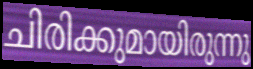
ചിരിക്കുമായിരുന്നു